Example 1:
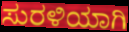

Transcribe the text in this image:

ಸುರಳಿಯಾಗಿ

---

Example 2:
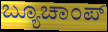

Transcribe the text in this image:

ಬ್ಯೂಚಾಂಪ್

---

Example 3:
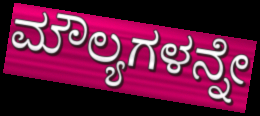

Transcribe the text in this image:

ಮೌಲ್ಯಗಳನ್ನೇ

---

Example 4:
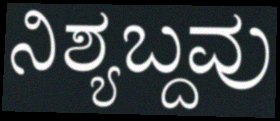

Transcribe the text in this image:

ನಿಶ್ಯಬ್ದವು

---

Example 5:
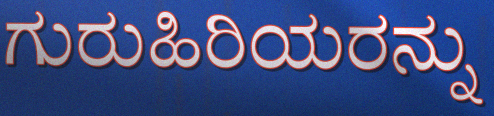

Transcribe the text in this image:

ಗುರುಹಿರಿಯರನ್ನು